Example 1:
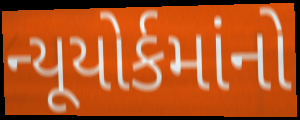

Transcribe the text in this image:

ન્યૂયોર્કમાંનો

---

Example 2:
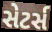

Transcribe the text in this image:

સેટર્સ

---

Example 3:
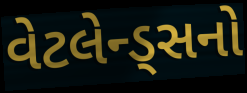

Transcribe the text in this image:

વેટલેન્ડ્સનો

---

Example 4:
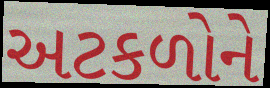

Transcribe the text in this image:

અટકળોને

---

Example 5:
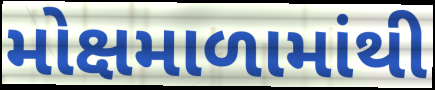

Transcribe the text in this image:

મોક્ષમાળામાંથી